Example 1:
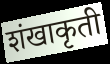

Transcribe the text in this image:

शंखाकृती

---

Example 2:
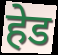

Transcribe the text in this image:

हेड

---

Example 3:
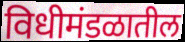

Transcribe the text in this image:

विधीमंडळातील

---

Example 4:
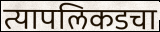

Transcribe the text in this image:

त्यापलिकडचा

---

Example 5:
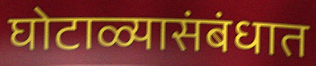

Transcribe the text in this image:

घोटाळ्यासंबंधात